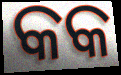
କକ